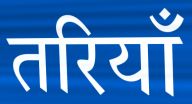
तरियाँ